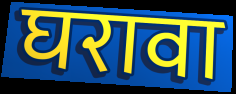
घरावा